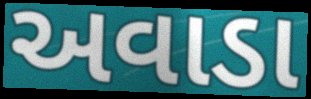
અવાડા